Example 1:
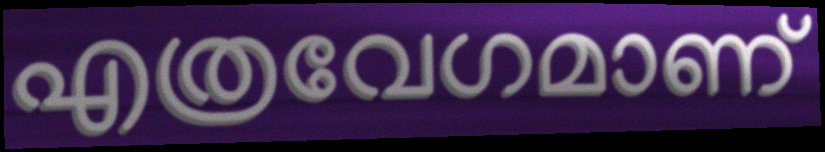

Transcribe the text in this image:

എത്രവേഗമാണ്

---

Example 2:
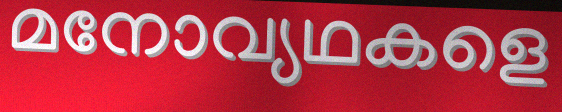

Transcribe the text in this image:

മനോവ്യഥകളെ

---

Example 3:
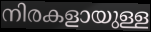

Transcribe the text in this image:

നിരകളായുള്ള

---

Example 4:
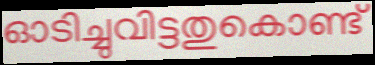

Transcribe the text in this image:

ഓടിച്ചുവിട്ടതുകൊണ്ട്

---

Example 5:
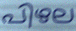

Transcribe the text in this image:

പിഴല